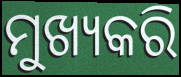
ମୁଖ୍ୟକରି